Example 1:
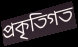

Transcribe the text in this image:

প্ৰকৃতিগত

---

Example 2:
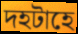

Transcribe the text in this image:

দহটাহে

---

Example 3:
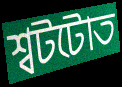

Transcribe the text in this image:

শ্বটটোত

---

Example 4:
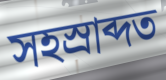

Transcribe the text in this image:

সহস্ৰাব্দত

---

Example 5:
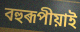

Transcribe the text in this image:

বহুৰূপীয়াই